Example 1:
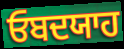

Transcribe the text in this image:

ਓਬਦਯਾਹ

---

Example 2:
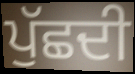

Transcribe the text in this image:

ਪੁੱਛਦੀ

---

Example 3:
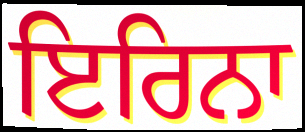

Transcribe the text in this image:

ਇਰਿਨਾ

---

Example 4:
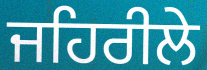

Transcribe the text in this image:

ਜਹਿਰੀਲੇ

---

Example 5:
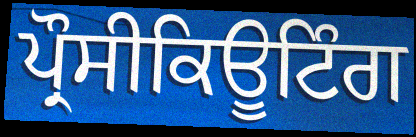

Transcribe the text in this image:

ਪ੍ਰੌਸੀਕਿਊਟਿੰਗ